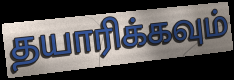
தயாரிக்கவும்